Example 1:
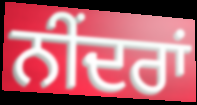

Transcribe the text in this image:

ਨੀਂਦਰਾਂ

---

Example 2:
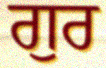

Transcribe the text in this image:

ਗੁਰ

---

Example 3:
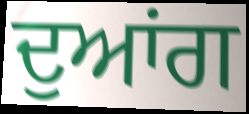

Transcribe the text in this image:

ਦੁਆਂਗ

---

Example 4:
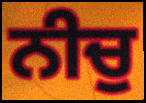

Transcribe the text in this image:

ਨੀਚੁ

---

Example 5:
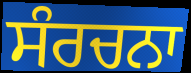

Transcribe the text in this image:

ਸੰਰਚਨਾ